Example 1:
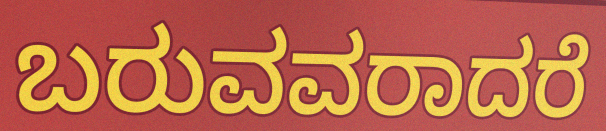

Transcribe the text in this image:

ಬರುವವರಾದರೆ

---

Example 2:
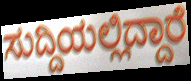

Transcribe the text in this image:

ಸುದ್ದಿಯಲ್ಲಿದ್ದಾರೆ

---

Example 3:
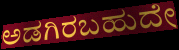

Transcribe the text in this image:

ಅಡಗಿರಬಹುದೇ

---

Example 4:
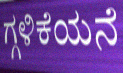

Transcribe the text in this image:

ಗ್ಗಳಿಕೆಯನೆ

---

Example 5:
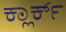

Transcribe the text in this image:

ಕ್ಲಾರ್ಕ್